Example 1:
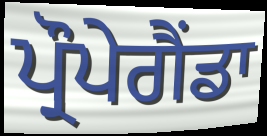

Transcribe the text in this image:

ਪ੍ਰੌਪੇਗੈਂਡਾ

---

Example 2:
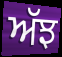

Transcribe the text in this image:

ਅੱਝ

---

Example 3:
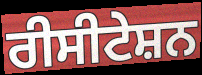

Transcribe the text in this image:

ਰੀਸੀਟੇਸ਼ਨ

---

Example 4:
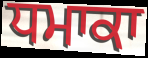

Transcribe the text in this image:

ਧਮਾਕਾ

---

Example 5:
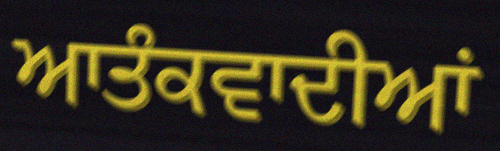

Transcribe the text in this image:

ਆਤੰਕਵਾਦੀਆਂ